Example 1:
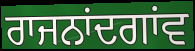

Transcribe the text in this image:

ਰਾਜਨਾਂਦਗਾਂਵ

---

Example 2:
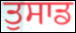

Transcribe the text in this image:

ਤੁਸਾਡ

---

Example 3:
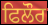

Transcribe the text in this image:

ਫਿਲੌਰ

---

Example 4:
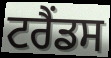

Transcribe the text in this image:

ਟਰੈਂਡਸ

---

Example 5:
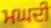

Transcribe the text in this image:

ਮਘਦੀ